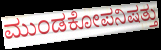
ಮುಂಡಕೋಪನಿಷತ್ತು